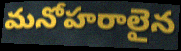
మనోహరాలైన